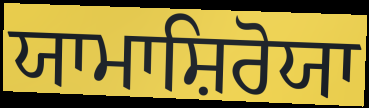
ਯਾਮਾਸ਼ਿਰੋਯਾ